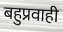
बहुप्रवाही